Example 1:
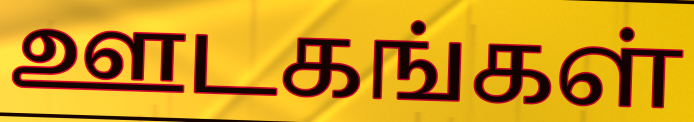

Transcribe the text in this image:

ஊடகங்கள்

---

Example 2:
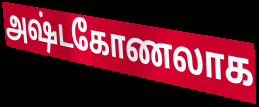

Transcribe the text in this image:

அஷ்டகோணலாக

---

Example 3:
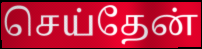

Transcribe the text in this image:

செய்தேன்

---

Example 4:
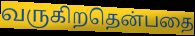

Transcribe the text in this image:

வருகிறதென்பதை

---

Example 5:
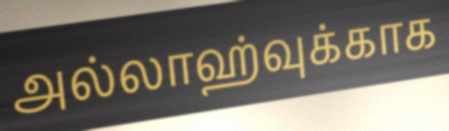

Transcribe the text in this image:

அல்லாஹ்வுக்காக